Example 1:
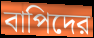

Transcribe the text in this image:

বাপিদের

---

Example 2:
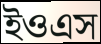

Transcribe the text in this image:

ইওএস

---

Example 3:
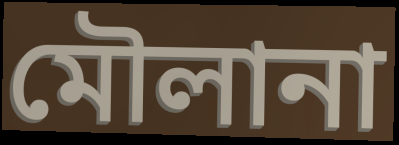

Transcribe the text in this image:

মৌলানা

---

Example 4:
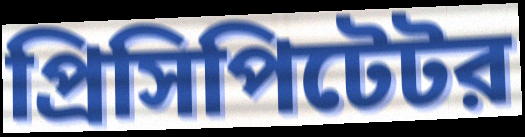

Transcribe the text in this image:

প্রিসিপিটেটর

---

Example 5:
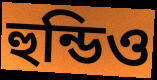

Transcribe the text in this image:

হুন্ডিও